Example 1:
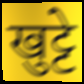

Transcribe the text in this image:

खुट्टे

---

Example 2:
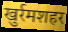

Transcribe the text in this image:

खुर्रमशहर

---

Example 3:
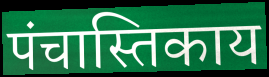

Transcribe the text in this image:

पंचास्तिकाय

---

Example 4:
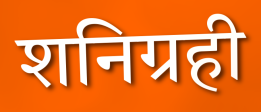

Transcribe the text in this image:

शनिग्रही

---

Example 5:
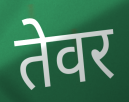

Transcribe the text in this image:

तेवर